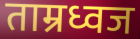
ताम्रध्वज